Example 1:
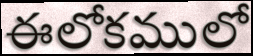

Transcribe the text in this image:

ఈలోకములో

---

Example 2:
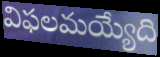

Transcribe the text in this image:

విఫలమయ్యేది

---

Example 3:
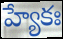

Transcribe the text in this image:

హ్యేకః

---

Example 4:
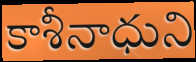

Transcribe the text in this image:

కాశీనాధుని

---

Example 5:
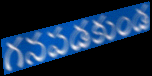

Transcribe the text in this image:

గనపడకుండ